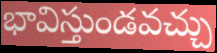
భావిస్తుండవచ్చు